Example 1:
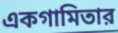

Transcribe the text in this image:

একগামিতার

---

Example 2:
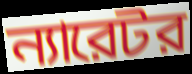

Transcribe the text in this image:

ন্যারেটর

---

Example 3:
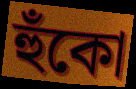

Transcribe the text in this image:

হুঁকো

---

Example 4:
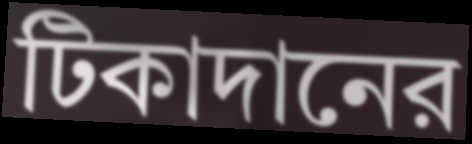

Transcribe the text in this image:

টিকাদানের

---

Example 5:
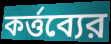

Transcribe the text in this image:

কর্ত্তব্যের